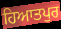
ਹਿਆਤਪੁਰ